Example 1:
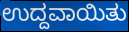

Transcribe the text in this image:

ಉದ್ದವಾಯಿತು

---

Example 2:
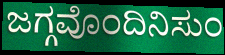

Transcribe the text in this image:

ಜಗ್ಗವೊಂದಿನಿಸುಂ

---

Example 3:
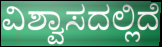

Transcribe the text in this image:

ವಿಶ್ವಾಸದಲ್ಲಿದೆ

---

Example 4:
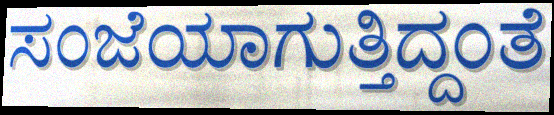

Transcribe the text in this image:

ಸಂಜೆಯಾಗುತ್ತಿದ್ದಂತೆ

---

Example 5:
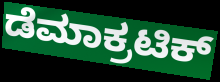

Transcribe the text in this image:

ಡೆಮಾಕ್ರಟಿಕ್